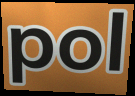
pol